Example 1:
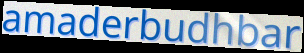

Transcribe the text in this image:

amaderbudhbar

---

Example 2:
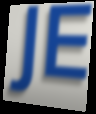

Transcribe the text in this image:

JE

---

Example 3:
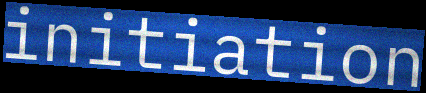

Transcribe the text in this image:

initiation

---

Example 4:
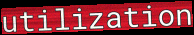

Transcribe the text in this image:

utilization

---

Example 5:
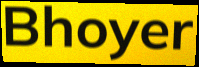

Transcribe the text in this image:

Bhoyer